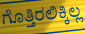
ಗೊತ್ತಿರಲಿಕ್ಕಿಲ್ಲ